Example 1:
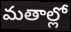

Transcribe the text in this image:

మతాల్లో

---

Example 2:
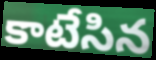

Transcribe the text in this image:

కాటేసిన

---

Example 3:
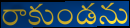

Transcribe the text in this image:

రాకుండను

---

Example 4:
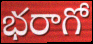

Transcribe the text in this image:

భరాగో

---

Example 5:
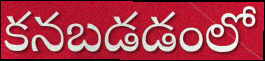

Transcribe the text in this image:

కనబడడంలో